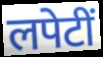
लपेटीं